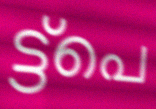
ട്ട്പെ